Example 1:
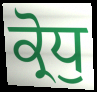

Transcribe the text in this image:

ਕ੍ਰੋਧੁ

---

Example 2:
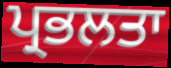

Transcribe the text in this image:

ਪ੍ਰਭਲਤਾ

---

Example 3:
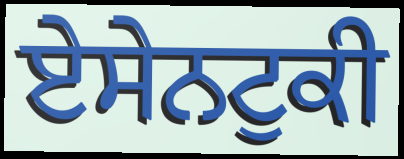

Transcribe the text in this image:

ਏਸੇਨਟੁਕੀ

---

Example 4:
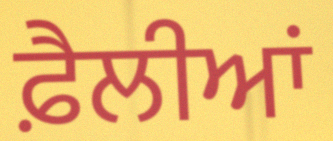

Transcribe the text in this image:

ਫ਼ੈਲੀਆਂ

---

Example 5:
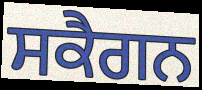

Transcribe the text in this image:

ਸਕੈਗਨ